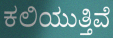
ಕಲಿಯುತ್ತಿವೆ